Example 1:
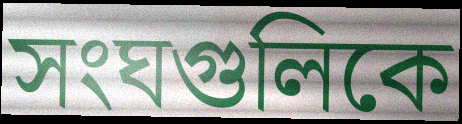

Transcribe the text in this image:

সংঘগুলিকে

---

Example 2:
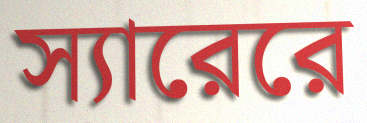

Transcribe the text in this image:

স্যারেরে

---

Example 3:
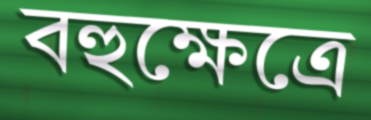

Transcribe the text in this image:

বহুক্ষেত্রে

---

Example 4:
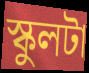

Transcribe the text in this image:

স্কুলটা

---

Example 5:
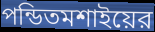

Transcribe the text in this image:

পন্ডিতমশাইয়ের